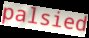
palsied